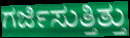
ಗರ್ಜಿಸುತ್ತಿತ್ತು